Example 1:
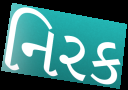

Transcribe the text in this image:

નિરક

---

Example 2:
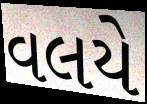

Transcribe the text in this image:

વલયે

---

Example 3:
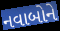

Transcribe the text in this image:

નવાબોને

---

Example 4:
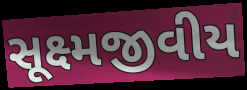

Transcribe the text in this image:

સૂક્ષ્મજીવીય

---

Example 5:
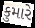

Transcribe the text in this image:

કુમારે